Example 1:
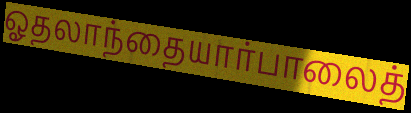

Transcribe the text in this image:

ஓதலாந்தையார்பாலைத்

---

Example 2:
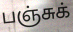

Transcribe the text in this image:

பஞ்சுக்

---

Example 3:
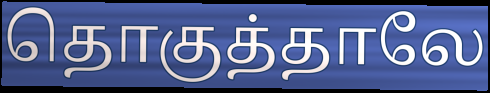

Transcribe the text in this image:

தொகுத்தாலே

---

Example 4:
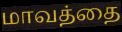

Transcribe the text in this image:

மாவத்தை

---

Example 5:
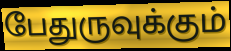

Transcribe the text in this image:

பேதுருவுக்கும்